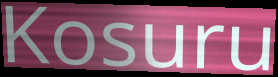
Kosuru